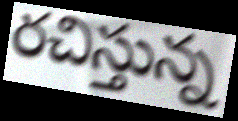
రచిస్తున్న